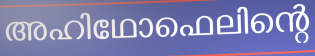
അഹിഥോഫെലിന്റെ